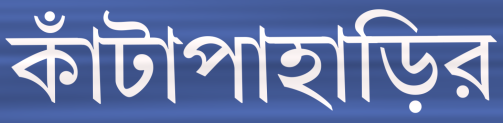
কাঁটাপাহাড়ির